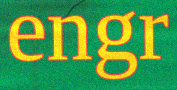
engr